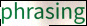
phrasing